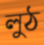
লুঠ